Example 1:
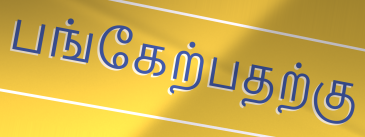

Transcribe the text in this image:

பங்கேற்பதற்கு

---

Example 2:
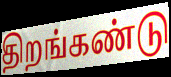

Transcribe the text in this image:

திறங்கண்டு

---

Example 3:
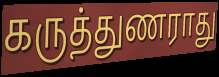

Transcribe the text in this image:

கருத்துணராது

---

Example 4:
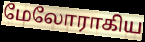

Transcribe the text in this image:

மேலோராகிய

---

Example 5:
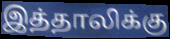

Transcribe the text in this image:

இத்தாலிக்கு